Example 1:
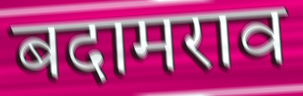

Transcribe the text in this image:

बदामराव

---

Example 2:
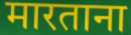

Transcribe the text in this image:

मारताना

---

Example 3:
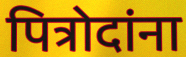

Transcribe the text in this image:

पित्रोदांना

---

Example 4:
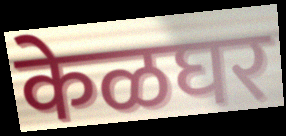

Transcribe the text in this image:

केळघर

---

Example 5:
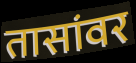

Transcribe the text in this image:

तासांवर